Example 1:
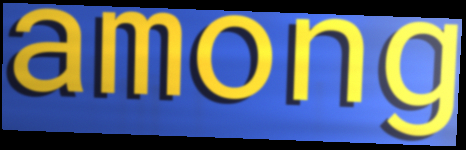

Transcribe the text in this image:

among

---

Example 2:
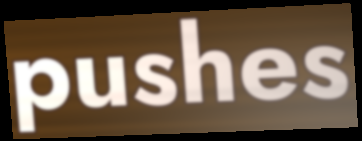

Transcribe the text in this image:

pushes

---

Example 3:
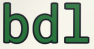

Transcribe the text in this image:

bdl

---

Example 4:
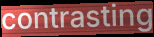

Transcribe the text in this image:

contrasting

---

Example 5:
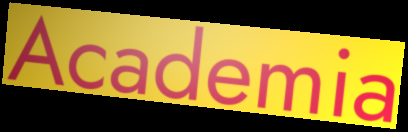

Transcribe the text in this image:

Academia